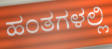
ಹಂತಗಳಲ್ಲಿ